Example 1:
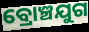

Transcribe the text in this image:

ବ୍ରୋଞ୍ଚଯୁଗ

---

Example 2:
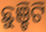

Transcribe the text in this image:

ଛୁଞ୍ଚିଟି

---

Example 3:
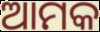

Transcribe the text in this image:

ଆମକ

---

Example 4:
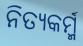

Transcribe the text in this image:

ନିତ୍ୟକର୍ମ୍ମ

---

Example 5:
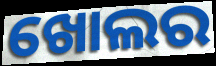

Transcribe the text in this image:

ଖୋଲର